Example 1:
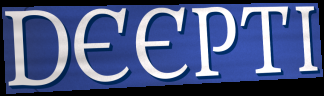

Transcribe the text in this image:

DEEPTI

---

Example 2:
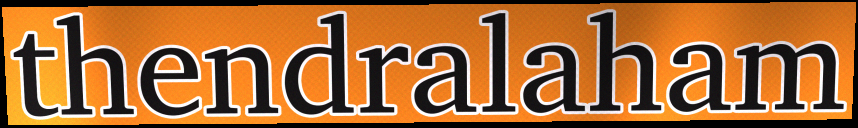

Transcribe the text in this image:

thendralaham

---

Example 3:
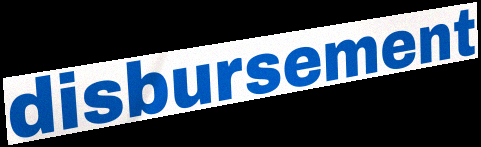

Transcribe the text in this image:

disbursement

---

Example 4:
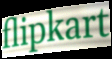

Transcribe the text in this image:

flipkart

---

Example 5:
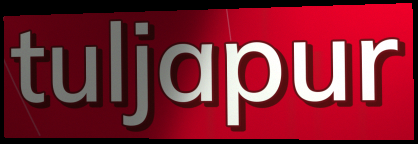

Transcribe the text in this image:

tuljapur